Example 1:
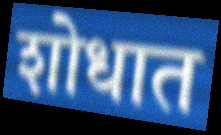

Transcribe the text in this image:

शोधात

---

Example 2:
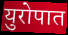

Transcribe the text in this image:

युरोपात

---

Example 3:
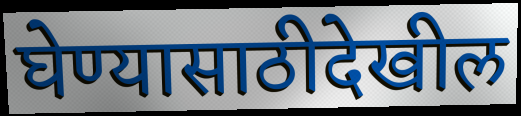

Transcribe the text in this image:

घेण्यासाठीदेखील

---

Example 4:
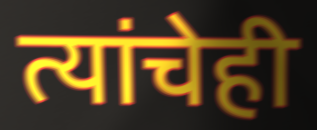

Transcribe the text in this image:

त्यांचेही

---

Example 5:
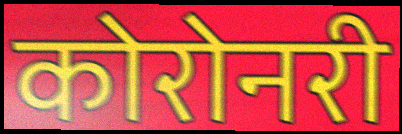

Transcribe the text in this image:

कोरोनरी